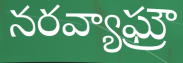
నరవ్యాఘ్రౌ